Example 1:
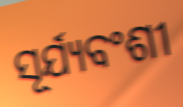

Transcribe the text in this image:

ସୂର୍ଯ୍ୟବଂଶୀ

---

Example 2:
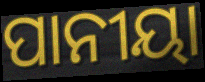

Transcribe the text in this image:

ପାନୀୟା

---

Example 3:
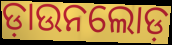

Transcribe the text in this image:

ଡ଼ାଉନଲୋଡ଼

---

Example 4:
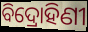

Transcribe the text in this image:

ବିଦ୍ରୋହିଣୀ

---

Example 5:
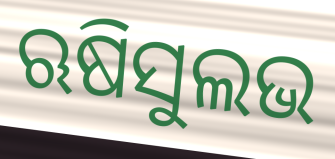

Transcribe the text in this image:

ଋଷିସୁଲଭ